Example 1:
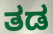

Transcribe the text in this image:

ತಡ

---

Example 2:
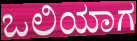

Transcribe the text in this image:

ಒಲಿಯಾಗ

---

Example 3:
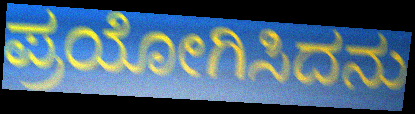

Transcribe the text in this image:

ಪ್ರಯೋಗಿಸಿದನು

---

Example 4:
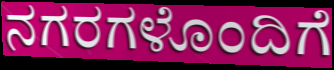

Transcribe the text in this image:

ನಗರಗಳೊಂದಿಗೆ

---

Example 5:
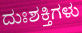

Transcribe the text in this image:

ದುಃಶಕ್ತಿಗಳು